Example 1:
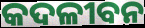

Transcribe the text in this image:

କଦଳୀବନ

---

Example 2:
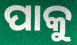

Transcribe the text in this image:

ପାକୁ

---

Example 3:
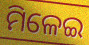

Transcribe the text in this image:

ମିଳେଇ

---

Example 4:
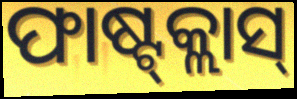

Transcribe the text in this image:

ଫାଷ୍ଟ୍‍କ୍ଲାସ୍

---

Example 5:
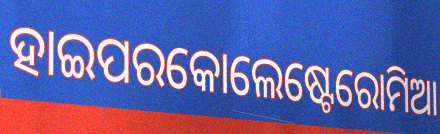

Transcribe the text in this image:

ହାଇପରକୋଲେଷ୍ଟେରୋମିଆ